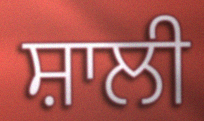
ਸ਼ਾਲੀ